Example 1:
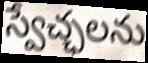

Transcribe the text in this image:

స్వేచ్ఛలను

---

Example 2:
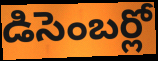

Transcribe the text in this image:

డిసెంబర్లో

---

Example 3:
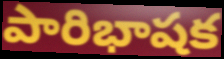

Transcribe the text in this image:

పారిభాషక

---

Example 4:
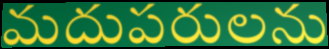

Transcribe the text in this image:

మదుపరులను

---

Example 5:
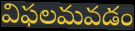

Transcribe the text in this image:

విఫలమవడం